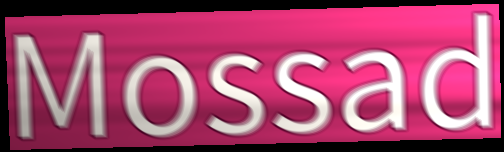
Mossad